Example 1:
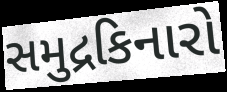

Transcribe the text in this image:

સમુદ્રકિનારો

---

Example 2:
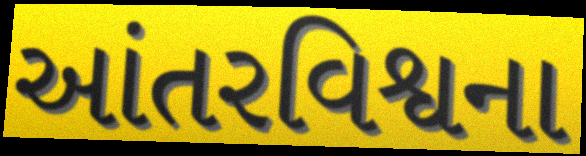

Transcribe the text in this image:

આંતરવિશ્વના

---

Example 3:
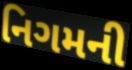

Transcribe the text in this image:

નિગમની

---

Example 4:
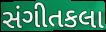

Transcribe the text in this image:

સંગીતકલા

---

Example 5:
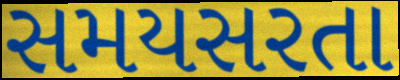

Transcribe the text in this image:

સમયસરતા